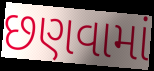
છણવામાં